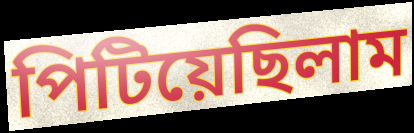
পিটিয়েছিলাম